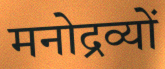
मनोद्रव्यों